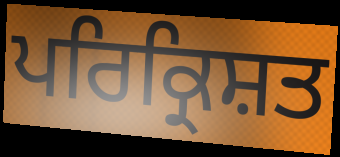
ਪਰਿਕ੍ਰਿਸ਼ਤ